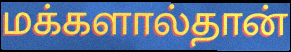
மக்களால்தான்